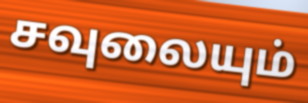
சவுலையும்